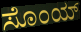
ಸೊಂಯ್